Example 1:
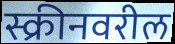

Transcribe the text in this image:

स्क्रीनवरील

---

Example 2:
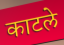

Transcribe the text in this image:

काटले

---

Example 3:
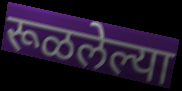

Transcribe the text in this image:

रूळलेल्या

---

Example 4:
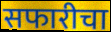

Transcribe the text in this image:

सफारीचा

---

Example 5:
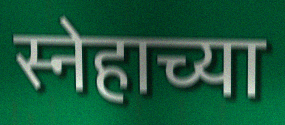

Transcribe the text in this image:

स्नेहाच्या